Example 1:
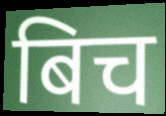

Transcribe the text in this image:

बिच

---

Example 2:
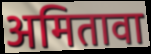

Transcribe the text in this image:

अमितावा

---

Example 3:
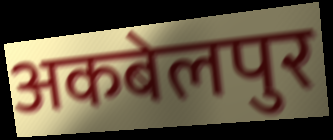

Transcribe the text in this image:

अकबेलपुर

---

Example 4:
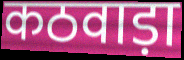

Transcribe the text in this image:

कठवाड़ा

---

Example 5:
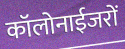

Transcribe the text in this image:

कॉलोनाईजरों